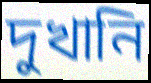
দুখানি